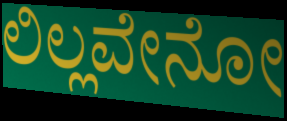
ಲಿಲ್ಲವೇನೋ